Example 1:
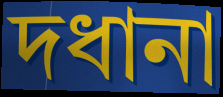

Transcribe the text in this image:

দধানা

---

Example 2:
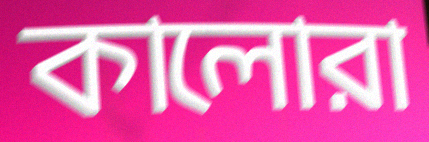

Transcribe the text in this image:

কালোরা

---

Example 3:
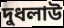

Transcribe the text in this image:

দুধলাউ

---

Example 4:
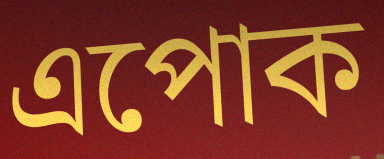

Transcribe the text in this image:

এপোক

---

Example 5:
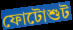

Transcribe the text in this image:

ফোটোশুট